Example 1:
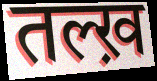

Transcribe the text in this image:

तल्ख़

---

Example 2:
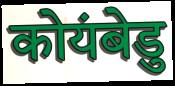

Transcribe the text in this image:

कोयंबेडु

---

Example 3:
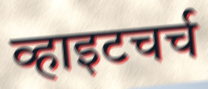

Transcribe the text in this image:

व्हाइटचर्च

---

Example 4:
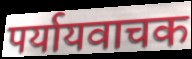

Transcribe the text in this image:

पर्यायवाचक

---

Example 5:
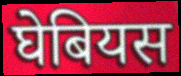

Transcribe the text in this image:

घेबियस